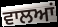
ਵਾਲਆਂ